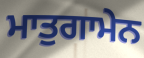
ਮਾਤੁਗਾਮੇਨ